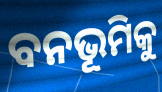
ବନଭୂମିକୁ